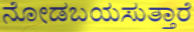
ನೋಡಬಯಸುತ್ತಾರೆ